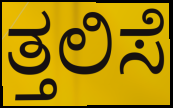
ತ್ತಲಿಸೆ